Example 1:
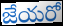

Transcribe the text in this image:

జేయరో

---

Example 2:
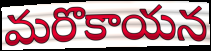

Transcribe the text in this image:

మరొకాయన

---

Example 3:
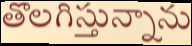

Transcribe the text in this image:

తొలగిస్తున్నాను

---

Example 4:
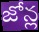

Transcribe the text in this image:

జోన్ల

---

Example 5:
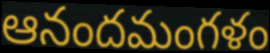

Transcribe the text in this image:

ఆనందమంగళం